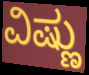
ವಿಷ್ಣು